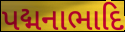
પદ્મનાભાદિ